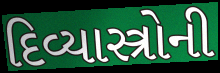
દિવ્યાસ્ત્રોની